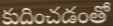
కుదించడంతో